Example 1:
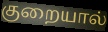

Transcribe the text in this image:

குறையால்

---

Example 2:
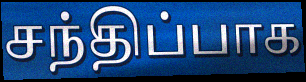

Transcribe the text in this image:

சந்திப்பாக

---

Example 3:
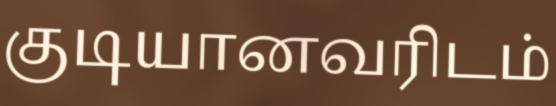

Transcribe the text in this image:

குடியானவரிடம்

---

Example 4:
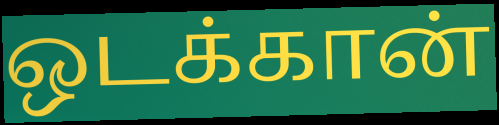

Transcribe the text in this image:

ஒடக்கான்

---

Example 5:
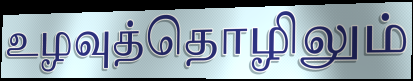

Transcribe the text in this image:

உழவுத்தொழிலும்